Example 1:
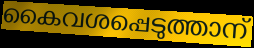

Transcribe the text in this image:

കൈവശപ്പെടുത്താന്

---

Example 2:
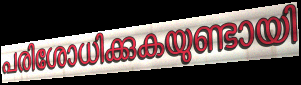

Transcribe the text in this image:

പരിശോധിക്കുകയുണ്ടായി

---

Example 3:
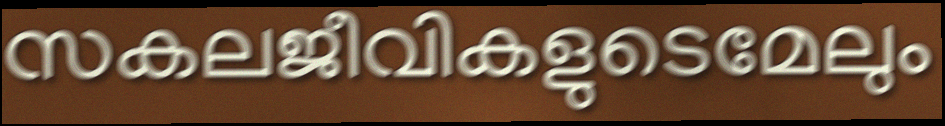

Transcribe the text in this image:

സകലജീവികളുടെമേലും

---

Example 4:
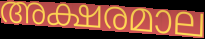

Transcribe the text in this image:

അക്ഷരമാല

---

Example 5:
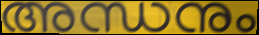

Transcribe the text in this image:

അന്ധനും